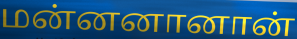
மன்னனானான்